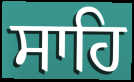
ਸਾਹਿ